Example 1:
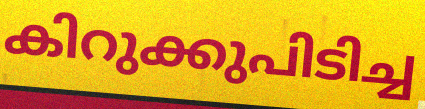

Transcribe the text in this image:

കിറുക്കുപിടിച്ച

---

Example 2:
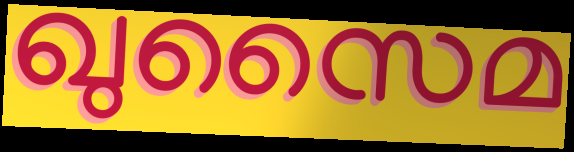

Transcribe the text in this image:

ഖുസൈമ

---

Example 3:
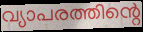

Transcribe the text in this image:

വ്യാപരത്തിന്റെ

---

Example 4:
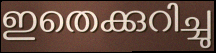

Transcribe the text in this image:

ഇതെക്കുറിച്ചു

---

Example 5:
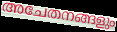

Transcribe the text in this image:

അചേതനങ്ങളും